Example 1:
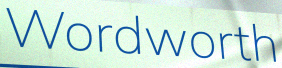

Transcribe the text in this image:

Wordworth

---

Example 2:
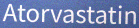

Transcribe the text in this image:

Atorvastatin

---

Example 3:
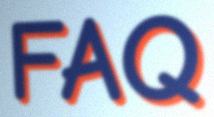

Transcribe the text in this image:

FAQ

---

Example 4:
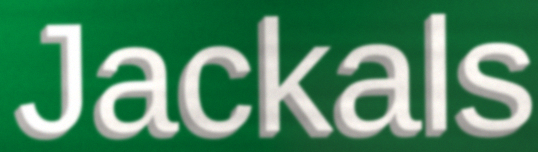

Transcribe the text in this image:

Jackals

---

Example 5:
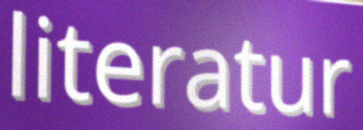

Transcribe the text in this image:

literatur